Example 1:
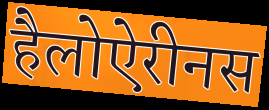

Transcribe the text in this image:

हैलोऐरीनस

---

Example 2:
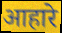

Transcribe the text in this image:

आहारे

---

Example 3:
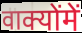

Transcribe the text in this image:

वाक्योंमें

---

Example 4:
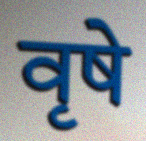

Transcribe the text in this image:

वृषे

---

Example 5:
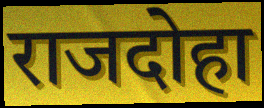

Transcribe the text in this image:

राजदोहा